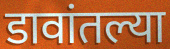
डावांतल्या